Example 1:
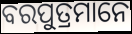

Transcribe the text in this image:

ବରପୁତ୍ରମାନେ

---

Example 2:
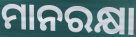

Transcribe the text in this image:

ମାନରକ୍ଷା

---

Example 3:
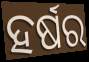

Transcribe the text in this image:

ହର୍ଷର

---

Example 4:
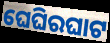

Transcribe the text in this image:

ଘେଘିରଘାଟ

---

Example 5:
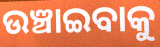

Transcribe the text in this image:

ଉଞ୍ଚାଇବାକୁ